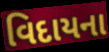
વિદાયના